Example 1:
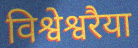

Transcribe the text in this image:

विश्वेश्वरैया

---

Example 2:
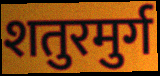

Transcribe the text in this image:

शतुरमुर्ग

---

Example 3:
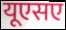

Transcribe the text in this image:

यूएसए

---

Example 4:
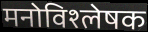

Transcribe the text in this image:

मनोविश्लेषक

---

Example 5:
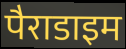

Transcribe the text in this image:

पैराडाइम